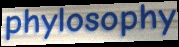
phylosophy